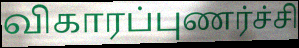
விகாரப்புணர்ச்சி